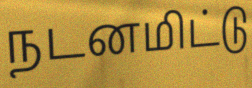
நடனமிட்டு